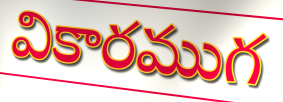
వికారముగ